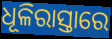
ଧୂଳିରାସ୍ତାରେ